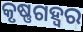
କୃଷ୍ଣଗହ୍ୱର